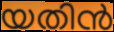
യതിൻ